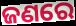
ଜଣରେ